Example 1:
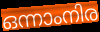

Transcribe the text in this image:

ഒന്നാംനിര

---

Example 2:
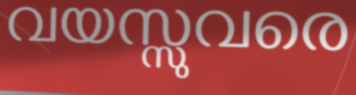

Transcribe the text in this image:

വയസ്സുവരെ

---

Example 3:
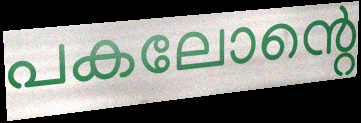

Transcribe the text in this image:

പകലോന്റെ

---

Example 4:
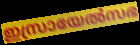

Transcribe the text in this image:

ഇസ്രായേൽസഭ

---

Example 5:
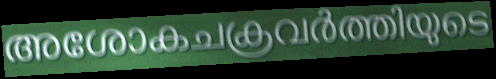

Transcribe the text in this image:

അശോകചക്രവർത്തിയുടെ